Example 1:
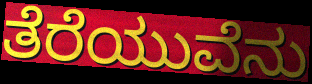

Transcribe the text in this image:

ತೆರೆಯುವೆನು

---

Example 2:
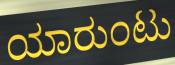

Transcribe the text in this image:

ಯಾರುಂಟು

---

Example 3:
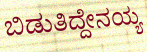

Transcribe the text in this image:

ಬಿಡುತಿದ್ದೇನಯ್ಯ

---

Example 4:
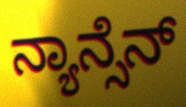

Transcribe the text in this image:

ನ್ಯಾನ್ಸೆನ್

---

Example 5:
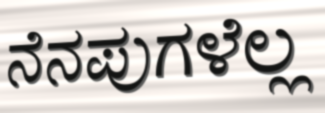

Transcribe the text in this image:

ನೆನಪುಗಳೆಲ್ಲ